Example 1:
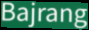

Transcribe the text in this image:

Bajrang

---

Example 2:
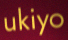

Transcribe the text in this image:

ukiyo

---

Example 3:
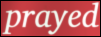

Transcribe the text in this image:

prayed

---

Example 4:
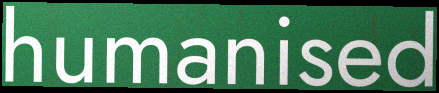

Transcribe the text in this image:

humanised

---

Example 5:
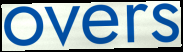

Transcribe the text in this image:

overs